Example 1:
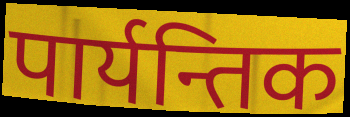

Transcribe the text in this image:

पार्यन्तिक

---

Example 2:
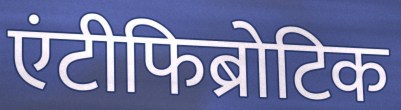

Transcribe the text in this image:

एंटीफिब्रोटिक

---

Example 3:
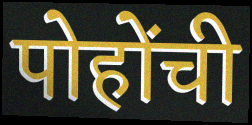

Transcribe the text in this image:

पोहोंची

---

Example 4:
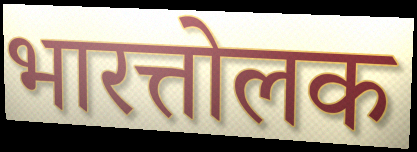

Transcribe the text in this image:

भारत्तोलक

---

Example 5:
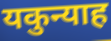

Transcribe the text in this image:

यकुन्याह